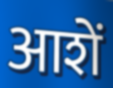
आशें